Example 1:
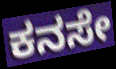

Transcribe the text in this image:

ಕನಸೇ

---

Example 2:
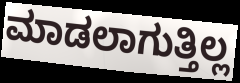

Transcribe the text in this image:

ಮಾಡಲಾಗುತ್ತಿಲ್ಲ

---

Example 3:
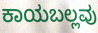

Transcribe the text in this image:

ಕಾಯಬಲ್ಲವು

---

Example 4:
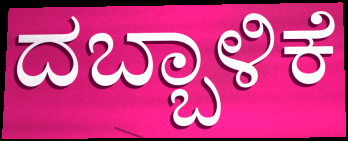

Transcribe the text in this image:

ದಬ್ಬಾಳಿಕೆ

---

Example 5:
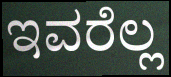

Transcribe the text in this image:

ಇವರೆಲ್ಲ